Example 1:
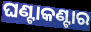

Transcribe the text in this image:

ଘଣ୍ଟାକଣ୍ଟାର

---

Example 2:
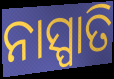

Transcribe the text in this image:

ନାସ୍ପାତି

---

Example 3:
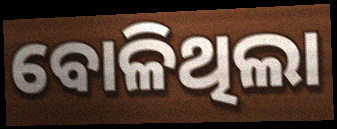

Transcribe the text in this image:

ବୋଳିଥିଲା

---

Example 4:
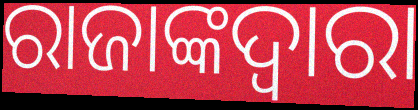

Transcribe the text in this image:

ରାଜାଙ୍କଦ୍ଵାରା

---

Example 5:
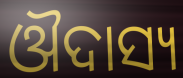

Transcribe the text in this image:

ଔଦାସ୍ୟ